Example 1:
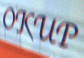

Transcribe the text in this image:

OKUP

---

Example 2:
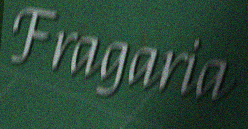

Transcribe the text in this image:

Fragaria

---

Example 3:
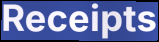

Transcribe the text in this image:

Receipts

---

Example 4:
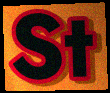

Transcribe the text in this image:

St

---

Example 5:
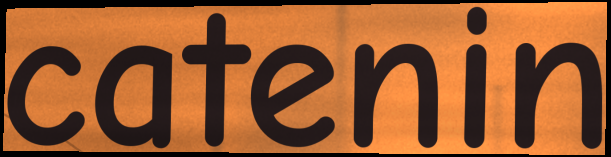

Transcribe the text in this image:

catenin